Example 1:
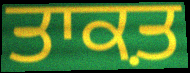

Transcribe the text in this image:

ਤਾਕ਼ਤ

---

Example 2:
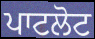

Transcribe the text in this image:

ਪਾਟਲੋਟ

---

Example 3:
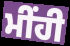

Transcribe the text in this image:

ਮੀਂਹੀ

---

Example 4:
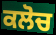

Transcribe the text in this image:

ਕਲੋਚ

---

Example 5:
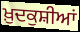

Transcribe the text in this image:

ਖ਼ੁਦਕੁਸ਼ੀਆਂ